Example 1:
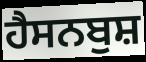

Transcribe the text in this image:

ਹੈਸਨਬੁਸ਼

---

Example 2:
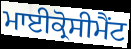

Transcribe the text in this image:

ਮਾਈਕ੍ਰੋਸੀਮੈਂਟ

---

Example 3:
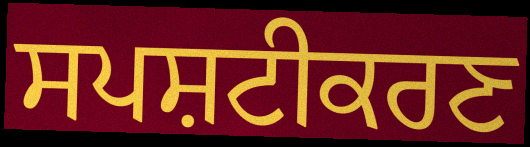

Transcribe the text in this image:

ਸਪਸ਼ਟੀਕਰਣ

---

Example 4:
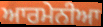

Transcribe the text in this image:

ਆਰਮੇਨੀਆ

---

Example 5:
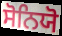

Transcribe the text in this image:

ਸੋਨਿਯੋ